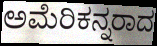
ಅಮೆರಿಕನ್ನರಾದ